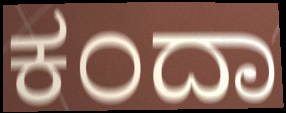
ಕಂದಾ